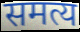
समत्य